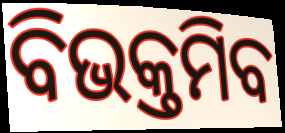
ବିଭକ୍ତମିବ